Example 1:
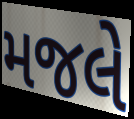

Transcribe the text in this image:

મજલે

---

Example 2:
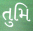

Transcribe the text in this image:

તુમિ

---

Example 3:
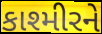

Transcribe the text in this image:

કાશ્મીરને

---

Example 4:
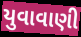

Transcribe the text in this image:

યુવાવાણી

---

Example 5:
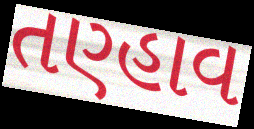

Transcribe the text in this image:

તણ્હાવ